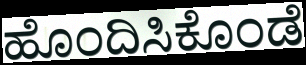
ಹೊಂದಿಸಿಕೊಂಡೆ